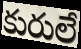
కురులే